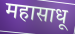
महासाधू